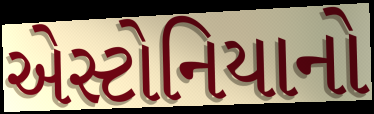
એસ્ટોનિયાનો